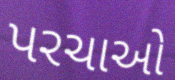
પરચાઓ